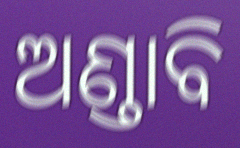
ଅଣ୍ଡାବି